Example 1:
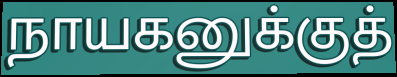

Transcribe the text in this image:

நாயகனுக்குத்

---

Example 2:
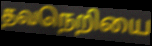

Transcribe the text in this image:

தவநெறியை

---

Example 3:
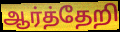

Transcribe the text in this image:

ஆர்த்தேறி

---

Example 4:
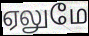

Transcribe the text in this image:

ஏலுமே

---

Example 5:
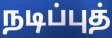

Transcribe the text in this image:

நடிப்புத்